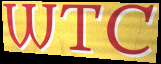
WTC